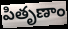
పితృణాం